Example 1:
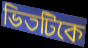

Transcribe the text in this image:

ভিতটিকে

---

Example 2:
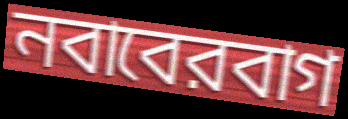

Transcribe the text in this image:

নবাবেরবাগ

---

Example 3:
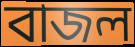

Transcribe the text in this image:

বাজল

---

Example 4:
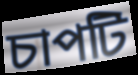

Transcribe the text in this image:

চাপটি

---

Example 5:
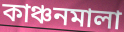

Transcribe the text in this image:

কাঞ্চনমালা